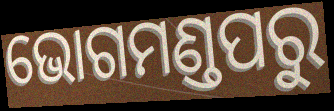
ଭୋଗମଣ୍ଡପରୁ